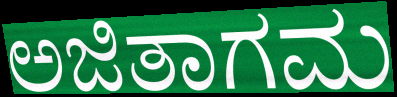
ಅಜಿತಾಗಮ